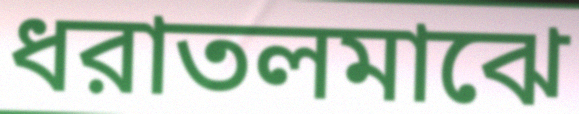
ধরাতলমাঝে